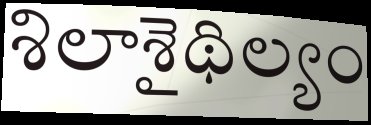
శిలాశైథిల్యం